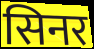
सिनर